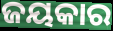
ଜୟକାର